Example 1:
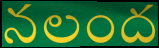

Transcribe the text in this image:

నలంద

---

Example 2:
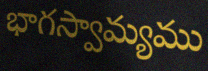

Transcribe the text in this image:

భాగస్వామ్యము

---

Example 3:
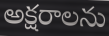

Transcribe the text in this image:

అక్షరాలను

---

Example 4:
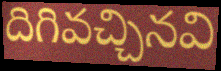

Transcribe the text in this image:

దిగివచ్చినవి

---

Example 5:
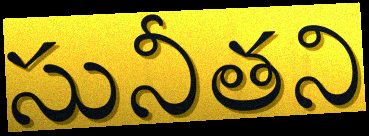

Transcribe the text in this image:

సునీతని